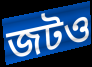
জটও